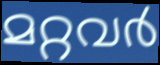
മറ്റവർ